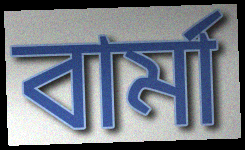
বাৰ্মা